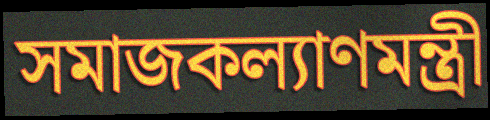
সমাজকল্যাণমন্ত্রী